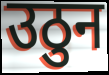
उठुन